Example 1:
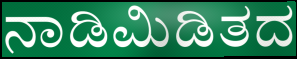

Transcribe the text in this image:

ನಾಡಿಮಿಡಿತದ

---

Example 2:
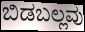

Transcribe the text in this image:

ಬಿಡಬಲ್ಲವು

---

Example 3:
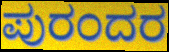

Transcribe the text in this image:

ಪುರಂದರ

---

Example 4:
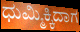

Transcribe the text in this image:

ಧುಮ್ಮಿಕ್ಕಿದಾಗ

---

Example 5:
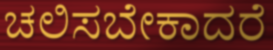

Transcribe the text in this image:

ಚಲಿಸಬೇಕಾದರೆ